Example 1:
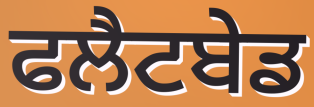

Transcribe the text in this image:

ਫਲੈਟਬੇਡ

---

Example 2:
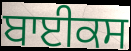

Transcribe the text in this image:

ਬਾਈਕਸ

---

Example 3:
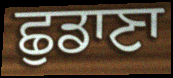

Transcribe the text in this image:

ਛੁਡਾਣਾ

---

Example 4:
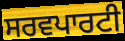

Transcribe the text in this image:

ਸਰਵਪਾਰਟੀ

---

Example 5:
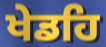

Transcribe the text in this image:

ਖੇਡਹਿ